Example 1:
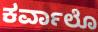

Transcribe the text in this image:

ಕರ್ವಾಲೊ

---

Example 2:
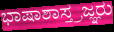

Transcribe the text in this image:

ಭಾಷಾಶಾಸ್ತ್ರಜ್ಞರು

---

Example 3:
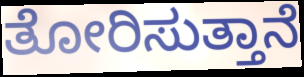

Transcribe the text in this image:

ತೋರಿಸುತ್ತಾನೆ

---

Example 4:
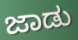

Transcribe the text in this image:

ಜಾಡು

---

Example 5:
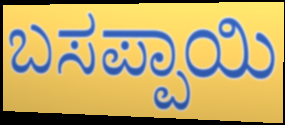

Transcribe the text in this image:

ಬಸಪ್ಪಾಯಿ